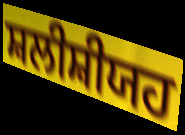
ਸ਼ਲੀਸ਼ੀਯਹ